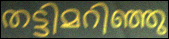
തട്ടിമറിഞ്ഞു